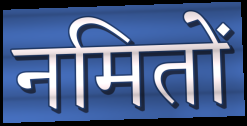
नमितों